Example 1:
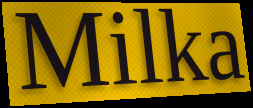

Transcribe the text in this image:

Milka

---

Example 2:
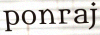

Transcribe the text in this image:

ponraj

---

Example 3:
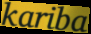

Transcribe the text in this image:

kariba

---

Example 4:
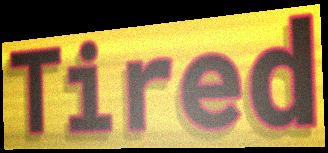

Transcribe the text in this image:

Tired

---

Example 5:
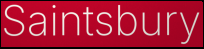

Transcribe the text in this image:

Saintsbury